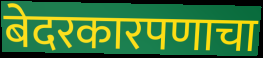
बेदरकारपणाचा